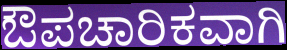
ಔಪಚಾರಿಕವಾಗಿ